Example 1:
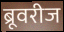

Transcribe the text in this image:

ब्रूवरीज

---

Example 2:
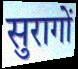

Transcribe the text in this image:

सुरागों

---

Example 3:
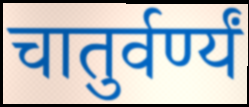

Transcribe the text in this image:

चातुर्वर्ण्यं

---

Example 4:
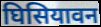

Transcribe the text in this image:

घिसियावन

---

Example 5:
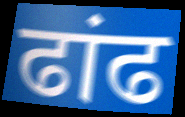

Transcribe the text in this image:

ढांढ